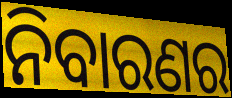
ନିବାରଣର